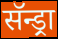
सॅन्ड्रा